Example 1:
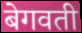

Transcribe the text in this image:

बेगवती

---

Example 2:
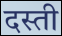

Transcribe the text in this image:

दस्ती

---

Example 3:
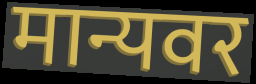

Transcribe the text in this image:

मान्‍यवर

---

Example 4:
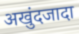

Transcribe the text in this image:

अखुंदजादा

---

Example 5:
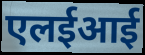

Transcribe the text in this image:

एलईआई